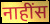
नाहींस